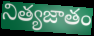
నిత్యజాతం